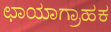
ಛಾಯಾಗ್ರಾಹಕ